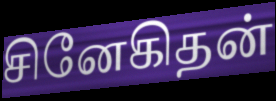
சினேகிதன்